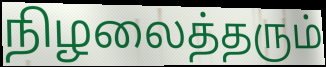
நிழலைத்தரும்